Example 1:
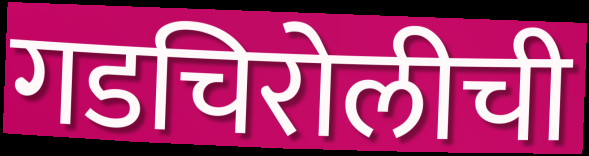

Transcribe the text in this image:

गडचिरोलीची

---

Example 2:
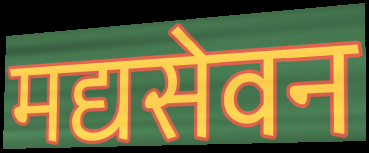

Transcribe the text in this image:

मद्यसेवन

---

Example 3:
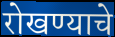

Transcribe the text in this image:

रोखण्याचे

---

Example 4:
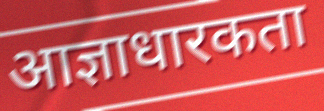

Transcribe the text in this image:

आज्ञाधारकता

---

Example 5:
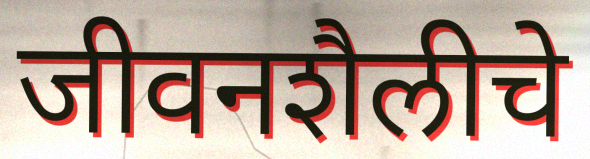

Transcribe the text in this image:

जीवनशैलीचे